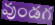
వుండగ